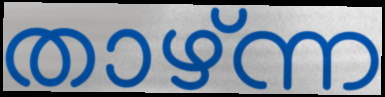
താഴ്ന്ന